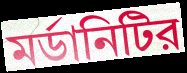
মর্ডানিটির